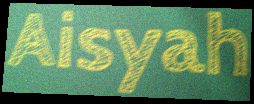
Aisyah